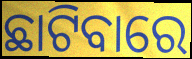
ଛାଟିବାରେ